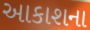
આકાશના